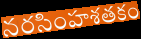
నరసింహశతకం